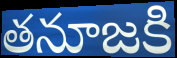
తనూజకి